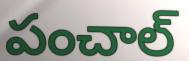
పంచాల్